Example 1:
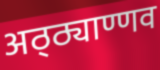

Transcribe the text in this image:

अठ्ठ्याण्णव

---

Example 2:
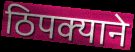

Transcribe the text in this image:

ठिपक्याने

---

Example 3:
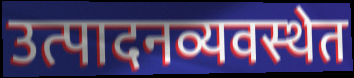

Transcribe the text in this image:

उत्पादनव्यवस्थेत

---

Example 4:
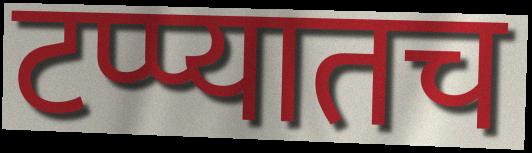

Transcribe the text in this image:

टप्प्यातच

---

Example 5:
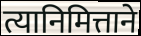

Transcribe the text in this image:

त्यानिमित्ताने